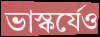
ভাস্কর্যেও